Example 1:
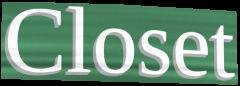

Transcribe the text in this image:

Closet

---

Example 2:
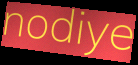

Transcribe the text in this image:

nodiye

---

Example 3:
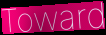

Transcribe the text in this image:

Toward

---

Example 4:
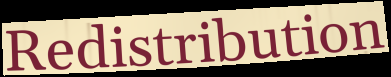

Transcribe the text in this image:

Redistribution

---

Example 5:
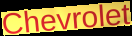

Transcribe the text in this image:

Chevrolet